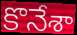
కొనేశా